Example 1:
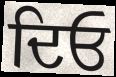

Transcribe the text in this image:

ਦਿਓ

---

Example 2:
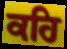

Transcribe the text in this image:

ਕਹਿ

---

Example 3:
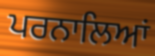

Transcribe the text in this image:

ਪਰਨਾਲਿਆਂ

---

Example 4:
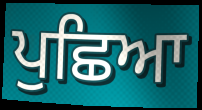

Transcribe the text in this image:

ਪੁਛਿਆ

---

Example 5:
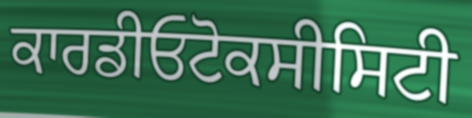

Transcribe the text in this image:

ਕਾਰਡੀਓਟੋਕਸੀਸਿਟੀ